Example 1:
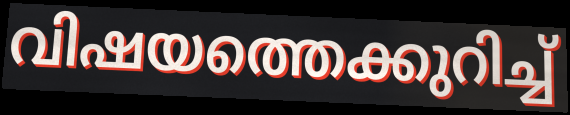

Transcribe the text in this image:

വിഷയത്തെക്കുറിച്ച്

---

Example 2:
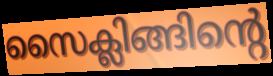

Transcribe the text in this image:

സൈക്ലിങ്ങിന്റെ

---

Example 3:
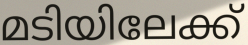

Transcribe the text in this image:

മടിയിലേക്ക്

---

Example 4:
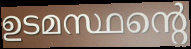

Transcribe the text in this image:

ഉടമസ്ഥന്റെ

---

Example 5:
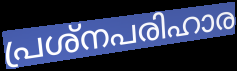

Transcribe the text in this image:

പ്രശ്നപരിഹാര